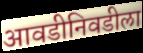
आवडीनिवडीला